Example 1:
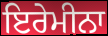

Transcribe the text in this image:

ਇਰੇਮੀਨਾ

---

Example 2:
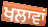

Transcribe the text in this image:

ਖਲਾਵਾਂ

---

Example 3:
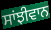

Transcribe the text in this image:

ਸਾਂਝੀਵਾਨ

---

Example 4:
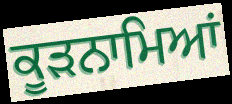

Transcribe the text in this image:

ਕੂੜਨਾਮਿਆਂ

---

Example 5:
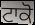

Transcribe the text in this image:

ਟਾਕੋ